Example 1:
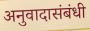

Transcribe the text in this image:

अनुवादासंबंधी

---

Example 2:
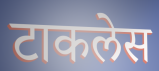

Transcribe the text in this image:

टाकलेस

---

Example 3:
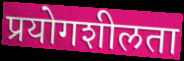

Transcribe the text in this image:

प्रयोगशीलता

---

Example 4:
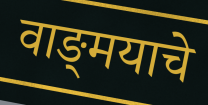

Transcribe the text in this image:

वाङ्‍मयाचे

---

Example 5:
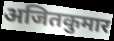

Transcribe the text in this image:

अजितकुमार